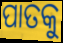
ପାତକୁ